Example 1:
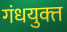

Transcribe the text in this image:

गंधयुक्‍त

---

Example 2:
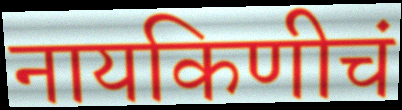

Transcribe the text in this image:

नायकिणीचं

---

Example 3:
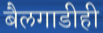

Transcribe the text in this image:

बैलगाडीही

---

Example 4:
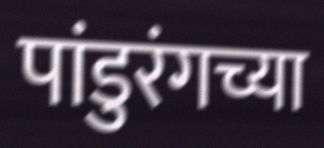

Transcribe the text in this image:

पांडुरंगच्या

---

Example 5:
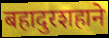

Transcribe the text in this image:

बहादुरशहाने